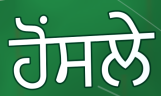
ਹੋਂਸਲੇ